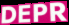
DEPR